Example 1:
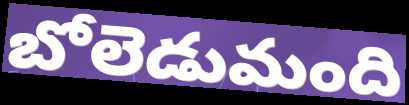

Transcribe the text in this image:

బోలెడుమంది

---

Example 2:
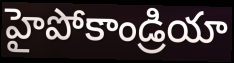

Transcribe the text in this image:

హైపోకాండ్రియా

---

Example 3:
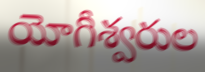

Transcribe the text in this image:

యోగీశ్వరుల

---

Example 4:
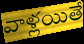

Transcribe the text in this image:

వాళ్లయితే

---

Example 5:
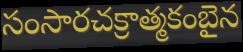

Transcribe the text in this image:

సంసారచక్రాత్మకంబైన